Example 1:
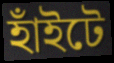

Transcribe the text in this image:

হাঁইটে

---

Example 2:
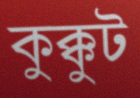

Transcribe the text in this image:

কুক্কুট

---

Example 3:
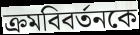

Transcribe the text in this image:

ক্রমবিবর্তনকে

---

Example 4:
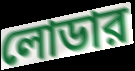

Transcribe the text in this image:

লোডার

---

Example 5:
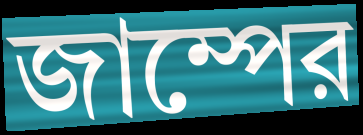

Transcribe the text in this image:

জাম্পের